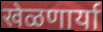
खेळणार्या